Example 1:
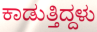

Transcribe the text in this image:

ಕಾಡುತ್ತಿದ್ದಳು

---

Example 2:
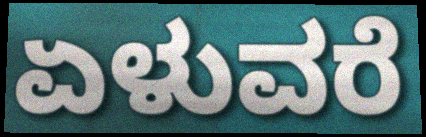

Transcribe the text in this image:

ಏಳುವರೆ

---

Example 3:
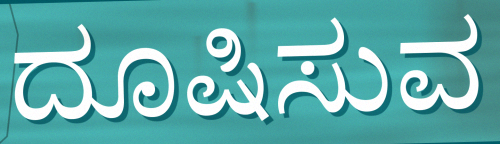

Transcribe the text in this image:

ದೂಷಿಸುವ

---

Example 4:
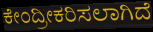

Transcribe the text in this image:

ಕೇಂದ್ರೀಕರಿಸಲಾಗಿದೆ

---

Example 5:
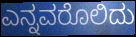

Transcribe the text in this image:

ಎನ್ನವರೊಲಿದು